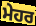
ਮੇਹਰ